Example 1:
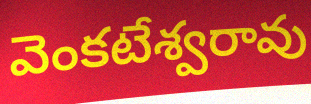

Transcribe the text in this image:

వెంకటేశ్వరావు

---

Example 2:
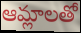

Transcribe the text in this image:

ఆమ్లాలతో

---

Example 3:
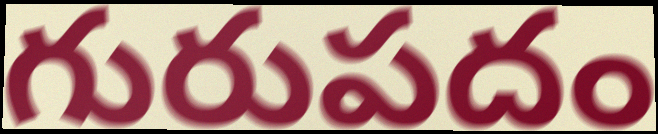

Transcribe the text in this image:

గురుపదం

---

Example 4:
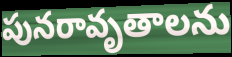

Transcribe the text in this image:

పునరావృతాలను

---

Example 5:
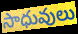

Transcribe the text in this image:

సాధువులు